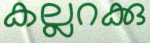
കല്ലറക്കു